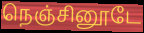
நெஞ்சினூடே